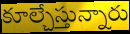
కూల్చేస్తున్నారు